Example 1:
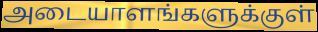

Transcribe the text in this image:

அடையாளங்களுக்குள்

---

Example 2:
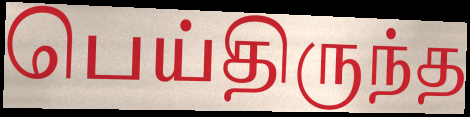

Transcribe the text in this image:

பெய்திருந்த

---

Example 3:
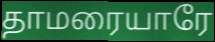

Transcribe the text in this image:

தாமரையாரே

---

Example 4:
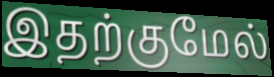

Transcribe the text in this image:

இதற்குமேல்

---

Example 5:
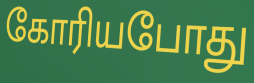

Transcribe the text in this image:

கோரியபோது